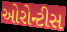
ઓરોન્ટીસ